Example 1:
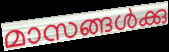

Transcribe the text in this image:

മാസങ്ങൾക്കു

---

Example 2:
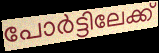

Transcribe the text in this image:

പോർട്ടിലേക്ക്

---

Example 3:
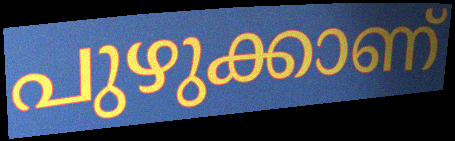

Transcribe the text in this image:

പുഴുക്കാണ്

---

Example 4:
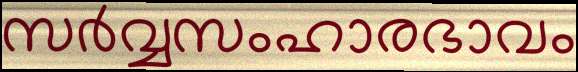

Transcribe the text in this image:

സർവ്വസംഹാരഭാവം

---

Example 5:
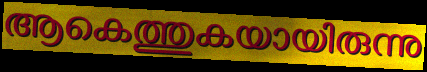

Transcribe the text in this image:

ആകെത്തുകയായിരുന്നു